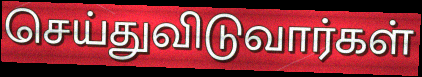
செய்துவிடுவார்கள்